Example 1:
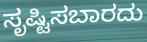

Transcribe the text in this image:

ಸೃಷ್ಟಿಸಬಾರದು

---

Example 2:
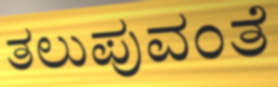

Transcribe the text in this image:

ತಲುಪುವಂತೆ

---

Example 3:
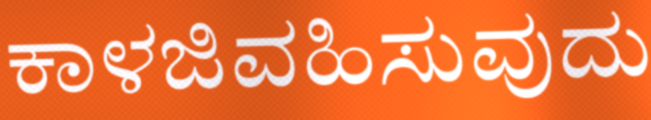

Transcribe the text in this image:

ಕಾಳಜಿವಹಿಸುವುದು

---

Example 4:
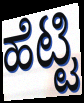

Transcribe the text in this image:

ಹೆಟ್ಟಿ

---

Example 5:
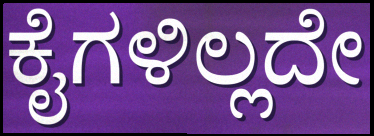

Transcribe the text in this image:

ಕೈಗಳಿಲ್ಲದೇ